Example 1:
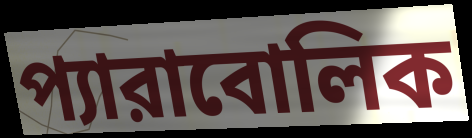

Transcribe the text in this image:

প্যারাবোলিক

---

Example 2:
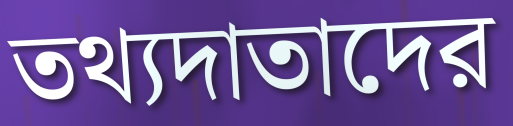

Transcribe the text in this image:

তথ্যদাতাদের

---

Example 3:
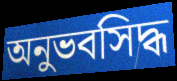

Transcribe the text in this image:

অনুভবসিদ্ধ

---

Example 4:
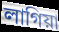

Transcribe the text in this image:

লাগিয়া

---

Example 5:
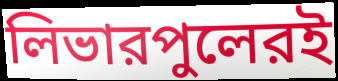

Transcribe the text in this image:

লিভারপুলেরই